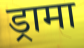
ड्रामा